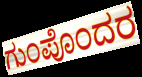
ಗುಂಪೊಂದರ